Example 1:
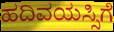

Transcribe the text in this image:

ಹದಿವಯಸ್ಸಿಗೆ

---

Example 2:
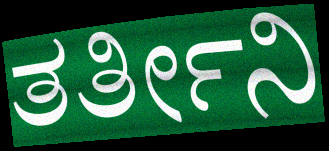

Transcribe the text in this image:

ತರ್ತೀನಿ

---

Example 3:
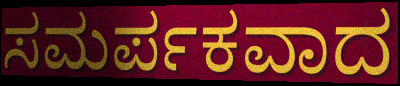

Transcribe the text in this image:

ಸಮರ್ಪಕವಾದ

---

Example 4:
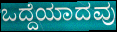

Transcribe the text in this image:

ಒದ್ದೆಯಾದವು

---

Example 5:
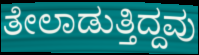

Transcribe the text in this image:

ತೇಲಾಡುತ್ತಿದ್ದವು